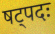
षट्पदः